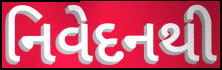
નિવેદનથી